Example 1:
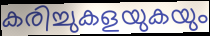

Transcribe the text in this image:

കരിച്ചുകളയുകയും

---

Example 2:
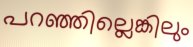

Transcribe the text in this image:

പറഞ്ഞില്ലെങ്കിലും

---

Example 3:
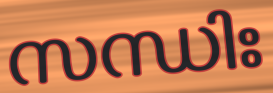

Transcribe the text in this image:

സന്ധിഃ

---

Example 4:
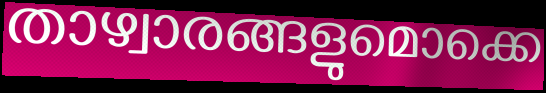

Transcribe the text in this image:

താഴ്വാരങ്ങളുമൊക്കെ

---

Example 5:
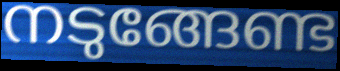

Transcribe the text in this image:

നടുങ്ങേണ്ട